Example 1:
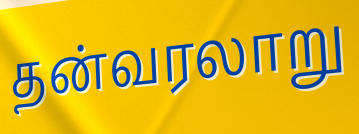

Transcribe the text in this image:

தன்வரலாறு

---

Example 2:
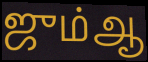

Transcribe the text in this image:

ஜும்ஆ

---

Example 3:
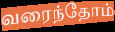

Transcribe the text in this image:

வரைந்தோம்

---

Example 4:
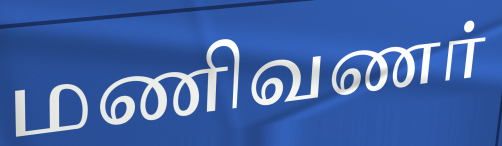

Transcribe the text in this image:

மணிவணர்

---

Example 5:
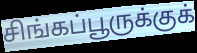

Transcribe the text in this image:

சிங்கப்பூருக்குக்